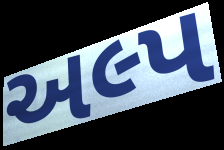
અલ્પ